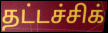
தட்டச்சிக்